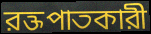
রক্তপাতকারী